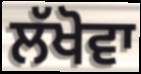
ਲੱਖੋਵਾ